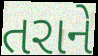
તરાને